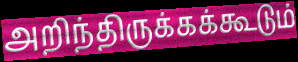
அறிந்திருக்கக்கூடும்